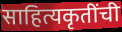
साहित्यकृतींची